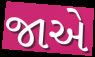
જાએ